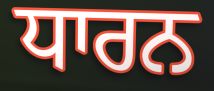
ਧਾਰਨ